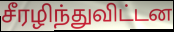
சீரழிந்துவிட்டன